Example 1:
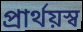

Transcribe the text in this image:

প্রার্থয়স্ব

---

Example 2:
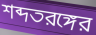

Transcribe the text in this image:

শব্দতরঙ্গের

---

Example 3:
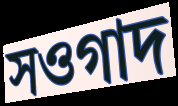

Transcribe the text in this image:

সওগাদ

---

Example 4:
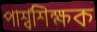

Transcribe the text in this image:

পার্শ্বশিক্ষক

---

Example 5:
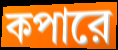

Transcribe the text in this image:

কপারে